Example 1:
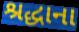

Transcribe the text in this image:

શ્રદ્ધાના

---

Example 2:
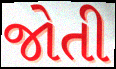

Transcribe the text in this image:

જોતી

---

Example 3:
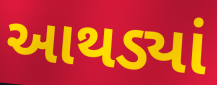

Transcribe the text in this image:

આથડ્યાં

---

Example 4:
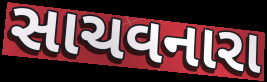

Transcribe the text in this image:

સાચવનારા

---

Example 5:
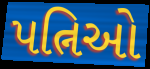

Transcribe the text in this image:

પત્નિઓ